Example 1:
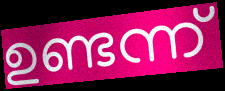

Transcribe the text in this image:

ഉണ്ടന്ന്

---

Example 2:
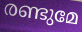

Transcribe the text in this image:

രണ്ടുമേ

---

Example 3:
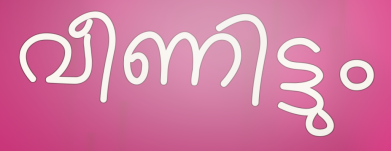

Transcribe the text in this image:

വീണിട്ടും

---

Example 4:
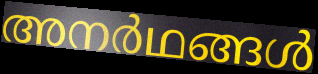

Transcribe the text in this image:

അനർഥങ്ങൾ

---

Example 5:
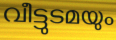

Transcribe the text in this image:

വീട്ടുടമയും